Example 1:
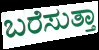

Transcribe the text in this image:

ಬರೆಸುತ್ತಾ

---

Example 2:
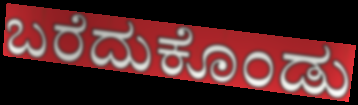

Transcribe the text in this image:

ಬರೆದುಕೊಂಡು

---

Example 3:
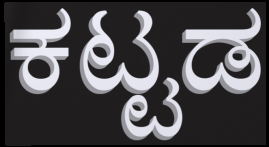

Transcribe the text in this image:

ಕಟ್ಟಡ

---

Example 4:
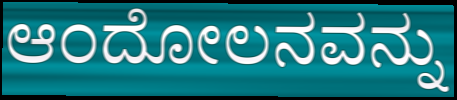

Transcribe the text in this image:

ಆಂದೋಲನವನ್ನು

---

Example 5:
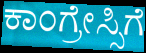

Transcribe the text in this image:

ಕಾಂಗ್ರೇಸ್ಸಿಗೆ